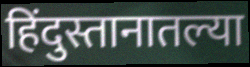
हिंदुस्तानातल्या